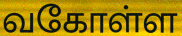
வகோள்ள